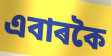
এবাৰকৈ